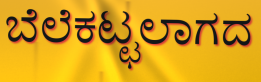
ಬೆಲೆಕಟ್ಟಲಾಗದ